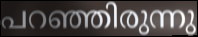
പറഞ്ഞിരുന്നു